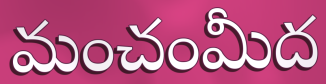
మంచంమీద